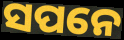
ସପନେ